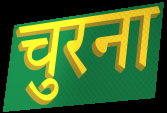
चुरना